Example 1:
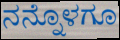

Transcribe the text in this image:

ನನ್ನೊಳಗೂ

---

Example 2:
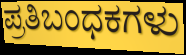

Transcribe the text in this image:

ಪ್ರತಿಬಂಧಕಗಳು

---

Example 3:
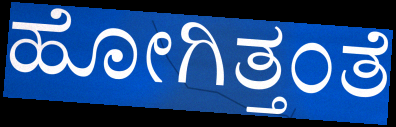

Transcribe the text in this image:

ಹೋಗಿತ್ತಂತೆ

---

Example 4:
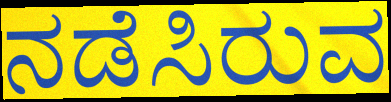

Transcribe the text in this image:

ನಡೆಸಿರುವ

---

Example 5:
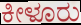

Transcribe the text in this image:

ಕೀಳೂರು